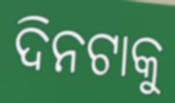
ଦିନଟାକୁ